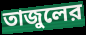
তাজুলের